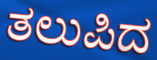
ತಲುಪಿದ